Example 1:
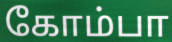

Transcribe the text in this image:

கோம்பா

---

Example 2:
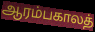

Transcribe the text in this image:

ஆரம்பகாலத்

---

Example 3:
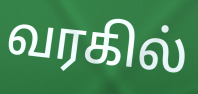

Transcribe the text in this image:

வரகில்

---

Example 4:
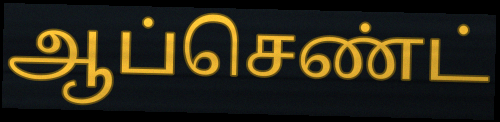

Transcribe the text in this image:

ஆப்செண்ட்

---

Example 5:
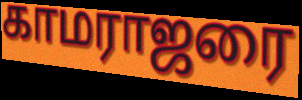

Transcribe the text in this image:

காமராஜரை